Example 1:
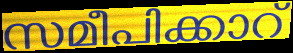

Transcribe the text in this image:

സമീപിക്കാറ്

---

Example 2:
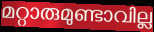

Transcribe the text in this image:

മറ്റാരുമുണ്ടാവില്ല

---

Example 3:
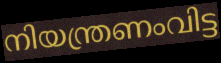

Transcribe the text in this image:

നിയന്ത്രണംവിട്ട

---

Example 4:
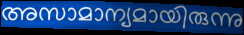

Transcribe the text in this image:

അസാമാന്യമായിരുന്നു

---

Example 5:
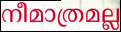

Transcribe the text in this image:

നീമാത്രമല്ല